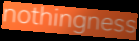
nothingness